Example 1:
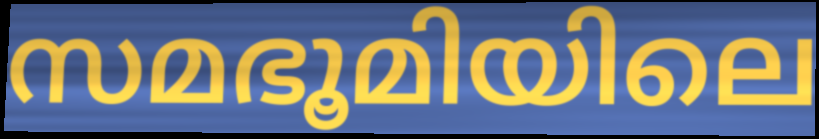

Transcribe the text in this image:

സമഭൂമിയിലെ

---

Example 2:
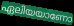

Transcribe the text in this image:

ഏലിയയാണോ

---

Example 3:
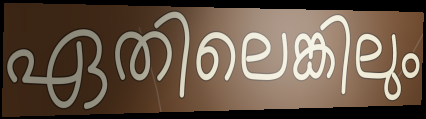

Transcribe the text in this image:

ഏതിലെങ്കിലും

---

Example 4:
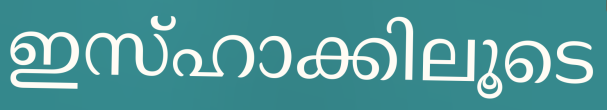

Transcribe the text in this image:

ഇസ്ഹാക്കിലൂടെ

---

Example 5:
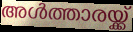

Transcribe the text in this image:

അൾത്താരയ്ക്ക്